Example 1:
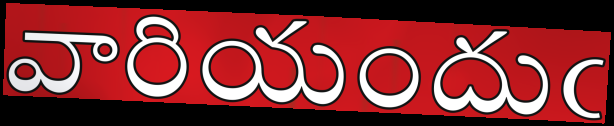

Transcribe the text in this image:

వారియందుఁ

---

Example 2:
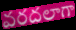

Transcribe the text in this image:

వరదలాగా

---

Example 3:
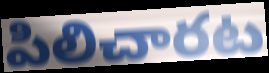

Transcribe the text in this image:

పిలిచారట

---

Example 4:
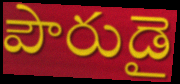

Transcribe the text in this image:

పౌరుడై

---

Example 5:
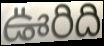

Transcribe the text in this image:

ఊరిది